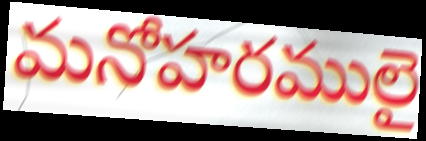
మనోహరములై